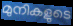
മുനികളുടെ